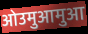
ओउमुआमुआ